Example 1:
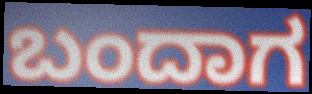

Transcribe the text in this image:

ಬಂದಾಗ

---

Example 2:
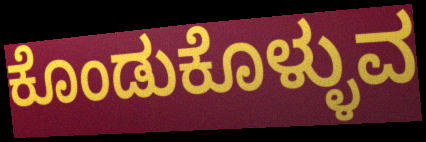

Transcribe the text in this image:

ಕೊಂಡುಕೊಳ್ಳುವ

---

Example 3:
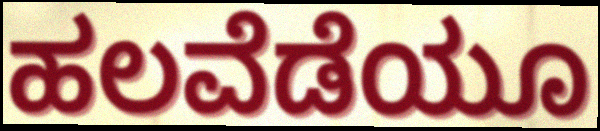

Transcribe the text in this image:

ಹಲವೆಡೆಯೂ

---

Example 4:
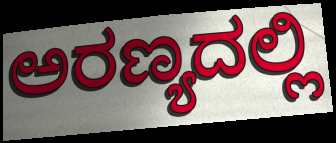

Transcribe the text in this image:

ಅರಣ್ಯದಲ್ಲಿ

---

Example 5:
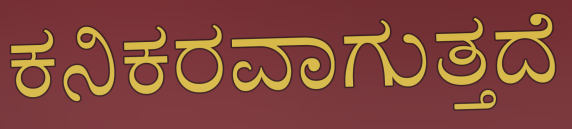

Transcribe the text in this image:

ಕನಿಕರವಾಗುತ್ತದೆ